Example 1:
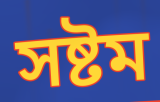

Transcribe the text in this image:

সষ্টম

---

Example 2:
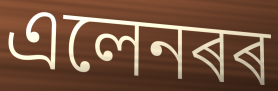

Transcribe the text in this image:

এলেনৰৰ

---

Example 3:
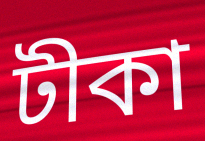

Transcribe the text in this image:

টীকা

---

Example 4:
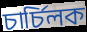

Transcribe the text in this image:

চাৰ্চিলক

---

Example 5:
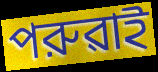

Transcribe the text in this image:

পৰুৱাই